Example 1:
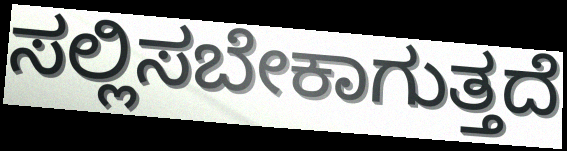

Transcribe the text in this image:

ಸಲ್ಲಿಸಬೇಕಾಗುತ್ತದೆ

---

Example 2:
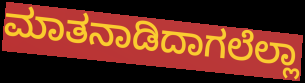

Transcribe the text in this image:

ಮಾತನಾಡಿದಾಗಲೆಲ್ಲಾ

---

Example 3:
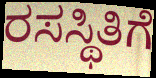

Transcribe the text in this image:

ರಸಸ್ಥಿತಿಗೆ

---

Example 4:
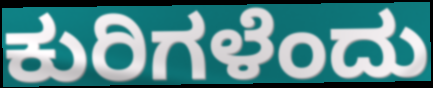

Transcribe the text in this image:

ಕುರಿಗಳೆಂದು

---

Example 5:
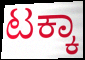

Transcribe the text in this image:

ಟಕ್ಕಾ